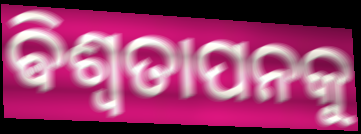
ଵିଶ୍ଵତାପନକୁ